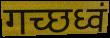
गच्छध्वं